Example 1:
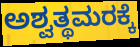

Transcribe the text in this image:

ಅಶ್ವತ್ಥಮರಕ್ಕೆ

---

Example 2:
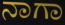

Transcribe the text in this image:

ನಾಗಾ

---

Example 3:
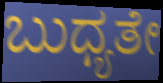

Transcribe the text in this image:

ಬುಧ್ಯತೇ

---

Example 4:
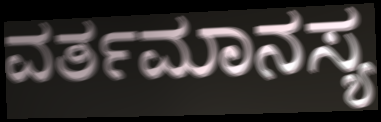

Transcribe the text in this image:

ವರ್ತಮಾನಸ್ಯ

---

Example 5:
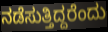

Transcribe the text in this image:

ನಡೆಸುತ್ತಿದ್ದರೆಂದು